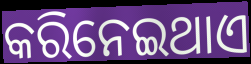
କରିନେଇଥାଏ